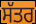
ਸੱਤਰ